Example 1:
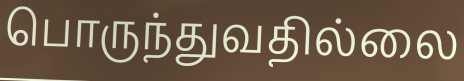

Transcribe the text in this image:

பொருந்துவதில்லை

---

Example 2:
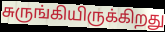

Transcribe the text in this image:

சுருங்கியிருக்கிறது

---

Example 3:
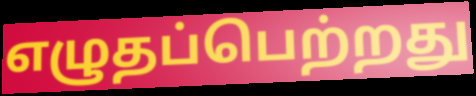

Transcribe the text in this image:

எழுதப்பெற்றது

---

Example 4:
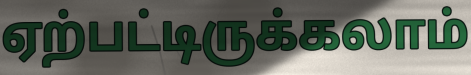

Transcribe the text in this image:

ஏற்பட்டிருக்கலாம்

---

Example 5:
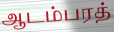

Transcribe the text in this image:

ஆடம்பரத்